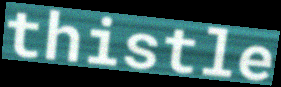
thistle